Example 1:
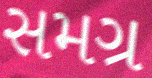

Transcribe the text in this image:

સમગ્ર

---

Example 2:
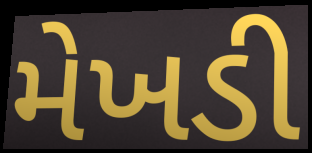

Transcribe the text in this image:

મેખડી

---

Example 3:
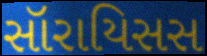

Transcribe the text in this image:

સૉરાયિસસ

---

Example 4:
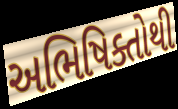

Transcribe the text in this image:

અભિષિક્તોથી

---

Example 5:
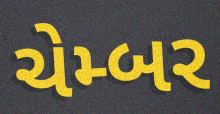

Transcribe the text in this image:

ચેમ્બર